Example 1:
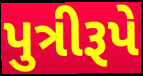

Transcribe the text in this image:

પુત્રીરૂપે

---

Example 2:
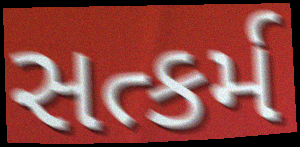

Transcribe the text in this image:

સત્કર્મ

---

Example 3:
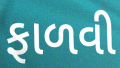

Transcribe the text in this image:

ફાળવી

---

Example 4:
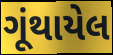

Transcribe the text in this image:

ગૂંથાયેલ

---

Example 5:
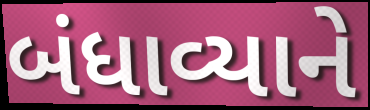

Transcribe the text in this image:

બંધાવ્યાને